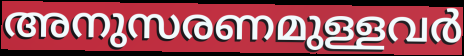
അനുസരണമുള്ളവർ